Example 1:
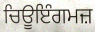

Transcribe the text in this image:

ਚਿਊਇੰਗਮਜ਼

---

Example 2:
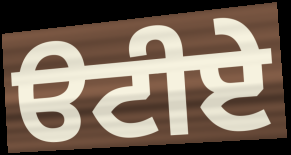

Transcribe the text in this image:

ੳਟੀਏ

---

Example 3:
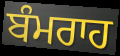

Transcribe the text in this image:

ਬੰਮਰਾਹ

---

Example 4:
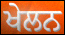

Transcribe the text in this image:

ਖੇਲਨ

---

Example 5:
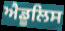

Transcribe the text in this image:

ਐਡੂਲਿਸ